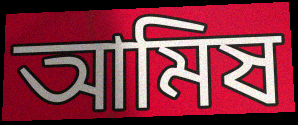
আমিষ